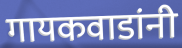
गायकवाडांनी